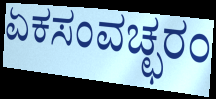
ಏಕಸಂವಚ್ಛರಂ